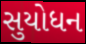
સુયોધન